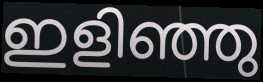
ഇളിഞ്ഞു